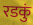
रडकुं